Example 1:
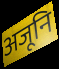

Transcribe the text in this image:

अजूनि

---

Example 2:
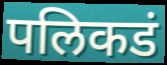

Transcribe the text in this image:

पलिकडं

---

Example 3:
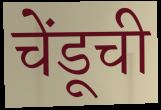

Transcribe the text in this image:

चेंडूची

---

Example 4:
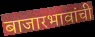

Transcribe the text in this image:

बाजारभावांची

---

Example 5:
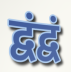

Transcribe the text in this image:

द्वंद्वं